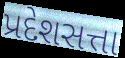
પ્રદેશસત્તા